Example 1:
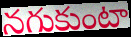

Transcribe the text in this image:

నగుకుంటా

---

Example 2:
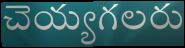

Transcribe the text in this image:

చెయ్యగలరు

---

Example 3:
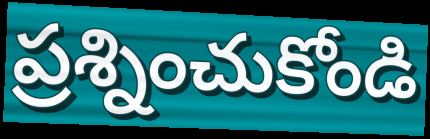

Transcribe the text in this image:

ప్రశ్నించుకోండి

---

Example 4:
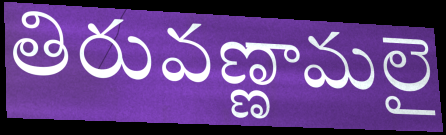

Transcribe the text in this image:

తిరువణ్ణామలై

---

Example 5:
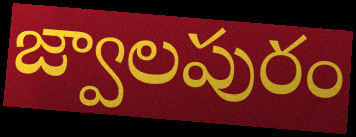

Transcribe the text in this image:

జ్వాలపురం